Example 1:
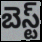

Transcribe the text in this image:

బెస్ట్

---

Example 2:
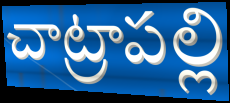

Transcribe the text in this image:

చాట్రాపల్లి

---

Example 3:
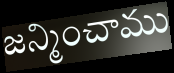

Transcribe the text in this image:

జన్మించాము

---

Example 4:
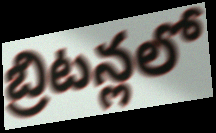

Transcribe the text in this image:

బ్రిటన్లలో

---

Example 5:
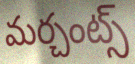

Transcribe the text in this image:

మర్చంట్స్